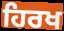
ਹਿਰਖ